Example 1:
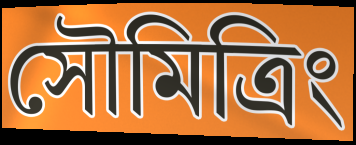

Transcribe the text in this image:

সৌমিত্রিং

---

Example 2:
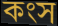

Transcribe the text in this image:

কংস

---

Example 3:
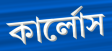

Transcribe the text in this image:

কার্লোস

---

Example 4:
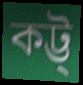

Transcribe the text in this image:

কট্ট্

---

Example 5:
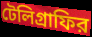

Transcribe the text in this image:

টেলিগ্রাফির